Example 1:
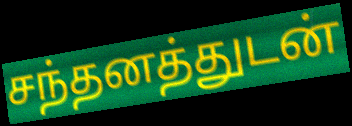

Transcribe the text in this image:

சந்தனத்துடன்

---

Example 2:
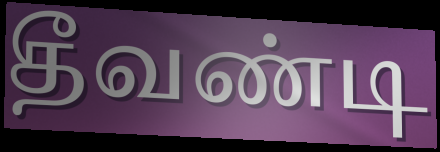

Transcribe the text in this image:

தீவண்டி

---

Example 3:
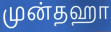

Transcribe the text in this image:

முன்தஹா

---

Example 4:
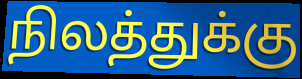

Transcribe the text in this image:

நிலத்துக்கு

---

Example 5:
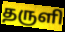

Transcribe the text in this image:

தருளி